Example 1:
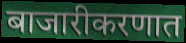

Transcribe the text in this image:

बाजारीकरणात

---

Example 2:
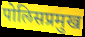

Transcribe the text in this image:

पोलिसप्रमुख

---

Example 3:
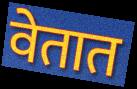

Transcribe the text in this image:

वेतात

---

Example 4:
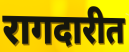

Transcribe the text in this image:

रागदारीत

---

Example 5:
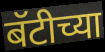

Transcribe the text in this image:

बॅटीच्या